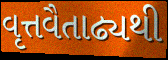
વૃત્તવૈતાઢ્યથી